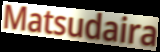
Matsudaira